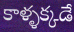
కాళ్ళక్కడే